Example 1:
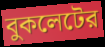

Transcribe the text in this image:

বুকলেটের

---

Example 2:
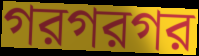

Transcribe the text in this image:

গরগরগর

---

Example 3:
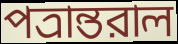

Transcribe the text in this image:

পত্রান্তরাল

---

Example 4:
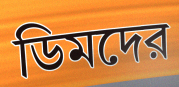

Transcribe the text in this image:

ডিমদের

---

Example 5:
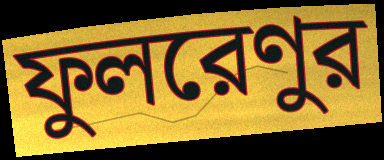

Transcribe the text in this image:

ফুলরেণুর